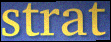
strat